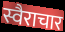
स्वैराचार